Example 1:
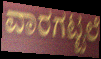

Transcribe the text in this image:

ವಾರಗಟ್ಟಲೆ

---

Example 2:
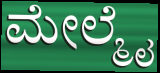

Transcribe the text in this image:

ಮೇಲ್ಮೈ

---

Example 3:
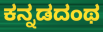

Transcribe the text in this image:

ಕನ್ನಡದಂಥ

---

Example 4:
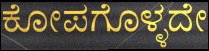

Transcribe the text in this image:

ಕೋಪಗೊಳ್ಳದೇ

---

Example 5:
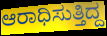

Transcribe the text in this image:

ಆರಾಧಿಸುತ್ತಿದ್ದ